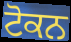
ਟੋਕਨ